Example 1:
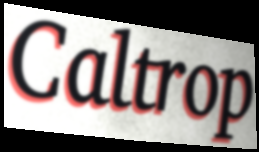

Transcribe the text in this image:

Caltrop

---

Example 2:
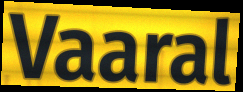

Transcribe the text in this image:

Vaaral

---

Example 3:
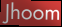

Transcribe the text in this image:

Jhoom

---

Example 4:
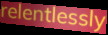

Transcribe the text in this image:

relentlessly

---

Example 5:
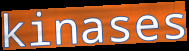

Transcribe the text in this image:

kinases